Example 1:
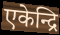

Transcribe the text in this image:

एकेन्द्रि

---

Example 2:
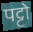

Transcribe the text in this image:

पट्टो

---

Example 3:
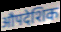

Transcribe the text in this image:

औपदेशिक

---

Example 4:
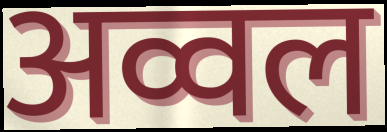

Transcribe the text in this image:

अव्वल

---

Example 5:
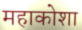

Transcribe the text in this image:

महाकोशा